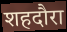
शहदौरा